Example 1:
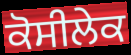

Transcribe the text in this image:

ਕੋਸੀਲੇਕ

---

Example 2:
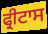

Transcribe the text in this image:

ਫ੍ਰੀਟਾਸ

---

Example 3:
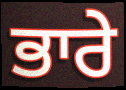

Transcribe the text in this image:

ਭਾਰੇ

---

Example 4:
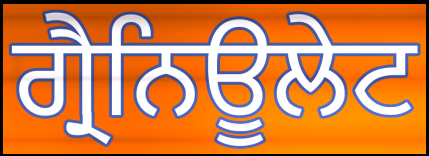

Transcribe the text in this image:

ਗ੍ਰੈਨਿਊਲੇਟ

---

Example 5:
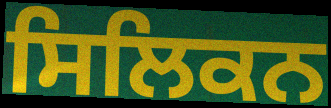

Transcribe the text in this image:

ਸਿਲਿਕਨ